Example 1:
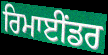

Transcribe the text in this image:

ਰਿਮਾਈਂਡਰ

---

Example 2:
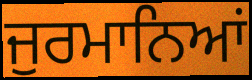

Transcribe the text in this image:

ਜੁਰਮਾਨਿਆਂ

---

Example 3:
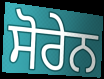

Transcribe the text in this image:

ਸੋਰੇਨ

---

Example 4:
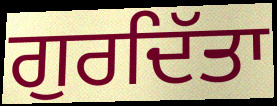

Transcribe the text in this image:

ਗੁਰਦਿੱਤਾ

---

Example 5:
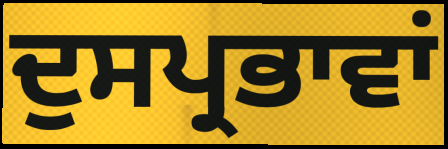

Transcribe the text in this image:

ਦੁਸਪ੍ਰਭਾਵਾਂ